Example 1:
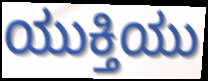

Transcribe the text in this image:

ಯುಕ್ತಿಯು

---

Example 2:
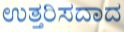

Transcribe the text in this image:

ಉತ್ತರಿಸದಾದ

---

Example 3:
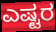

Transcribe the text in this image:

ಎಷ್ಟರ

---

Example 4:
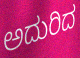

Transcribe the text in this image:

ಅದುರಿದ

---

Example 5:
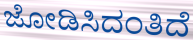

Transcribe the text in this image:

ಜೋಡಿಸಿದಂತಿದೆ